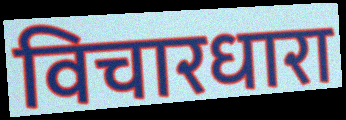
विचारधारा